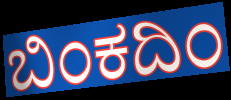
ಬಿಂಕದಿಂ